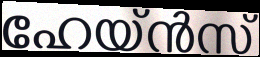
ഹേയ്ൻസ്